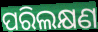
ପରିଲକ୍ଷଣ